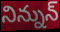
నిన్నున్